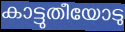
കാട്ടുതീയോടു